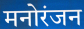
मनोरंजन